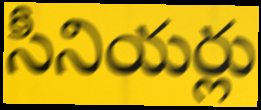
సీనియర్లు